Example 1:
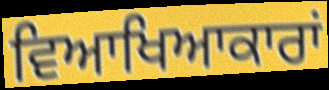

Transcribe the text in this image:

ਵਿਆਖਿਆਕਾਰਾਂ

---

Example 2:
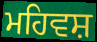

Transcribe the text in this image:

ਮਹਿਵਸ਼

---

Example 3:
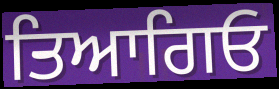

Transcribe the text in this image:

ਤਿਆਗਿਓ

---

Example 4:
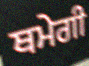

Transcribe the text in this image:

ਥਮੇਗੀ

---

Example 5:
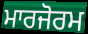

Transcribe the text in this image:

ਮਾਰਜੋਰਮ